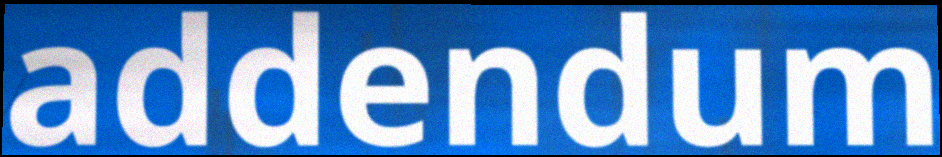
addendum